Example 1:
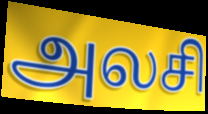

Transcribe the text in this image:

அலசி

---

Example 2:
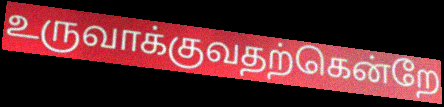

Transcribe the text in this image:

உருவாக்குவதற்கென்றே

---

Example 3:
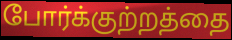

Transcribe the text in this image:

போர்க்குற்றத்தை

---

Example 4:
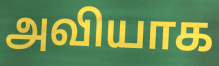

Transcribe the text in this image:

அவியாக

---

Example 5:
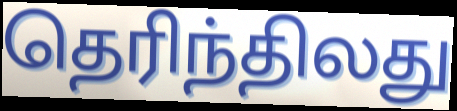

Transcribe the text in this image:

தெரிந்திலது